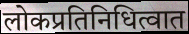
लोकप्रतिनिधित्वात